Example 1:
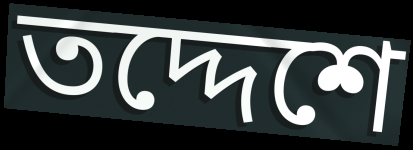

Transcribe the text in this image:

তদ্দেশে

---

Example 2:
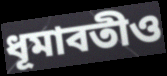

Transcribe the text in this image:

ধূমাবতীও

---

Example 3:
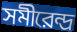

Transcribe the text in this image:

সমীরেন্দ্র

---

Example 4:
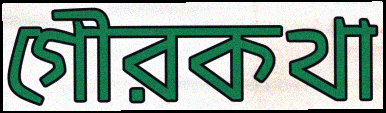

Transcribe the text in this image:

গৌরকথা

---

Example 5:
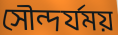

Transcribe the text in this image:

সৌন্দর্যময়